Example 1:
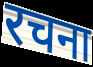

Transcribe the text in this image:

रचना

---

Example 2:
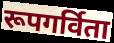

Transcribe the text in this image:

रूपगर्विता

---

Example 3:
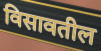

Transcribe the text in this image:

विसावतील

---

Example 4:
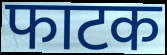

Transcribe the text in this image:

फाटक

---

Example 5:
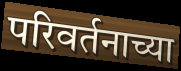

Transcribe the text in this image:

परिवर्तनाच्या